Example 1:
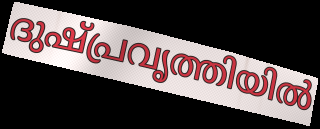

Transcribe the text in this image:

ദുഷ്പ്രവൃത്തിയിൽ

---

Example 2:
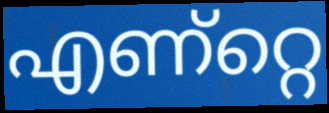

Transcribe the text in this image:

എണ്റ്റെ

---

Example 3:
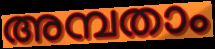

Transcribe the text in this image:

അമ്പതാം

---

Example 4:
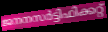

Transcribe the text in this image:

ജനനസർട്ടിഫിക്കറ്റ്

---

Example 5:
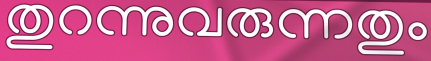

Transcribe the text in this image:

തുറന്നുവരുന്നതും